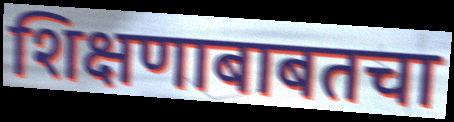
शिक्षणाबाबतचा